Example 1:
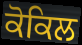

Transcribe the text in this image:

ਕੋਕਿਲ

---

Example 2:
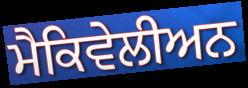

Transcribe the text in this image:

ਮੈਕਿਵੇਲੀਅਨ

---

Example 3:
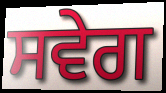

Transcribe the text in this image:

ਸਵੇਗ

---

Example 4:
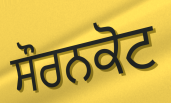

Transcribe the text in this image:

ਸੌਰਨਕੋਟ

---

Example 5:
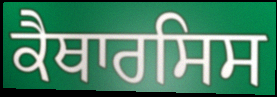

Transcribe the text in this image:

ਕੈਥਾਰਸਿਸ